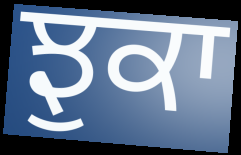
ਝੁਕਾ